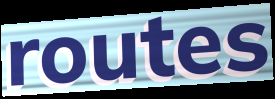
routes